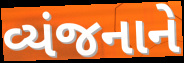
વ્યંજનાને